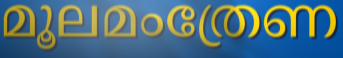
മൂലമംത്രേണ